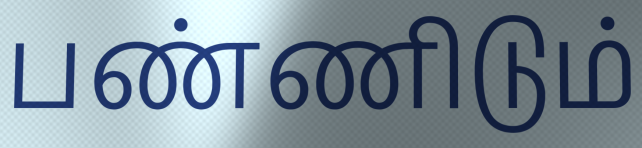
பண்ணிடும்